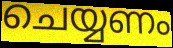
ചെയ്യണം